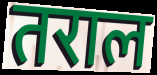
तराल